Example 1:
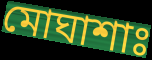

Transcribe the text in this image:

মোঘাশাঃ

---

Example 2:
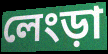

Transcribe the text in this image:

লেংড়া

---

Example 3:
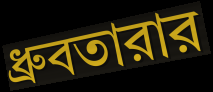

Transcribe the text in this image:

ধ্রুবতারার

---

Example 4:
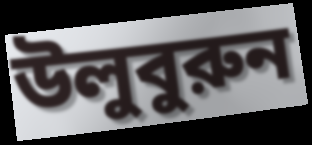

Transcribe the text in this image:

উলুবুরুন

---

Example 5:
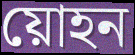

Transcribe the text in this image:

য়োহন